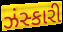
ઝંસ્કારી